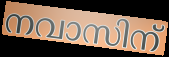
നവാസിന്